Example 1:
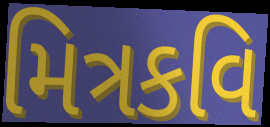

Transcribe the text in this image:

મિત્રકવિ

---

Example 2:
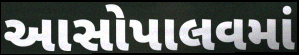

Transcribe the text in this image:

આસોપાલવમાં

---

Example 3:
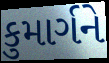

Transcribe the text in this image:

કુમાર્ગને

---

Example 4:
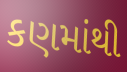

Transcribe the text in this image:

કણમાંથી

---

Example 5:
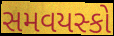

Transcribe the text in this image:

સમવયસ્કો